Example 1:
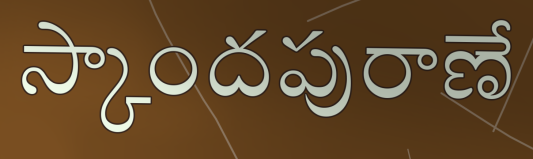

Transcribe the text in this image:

స్కాందపురాణే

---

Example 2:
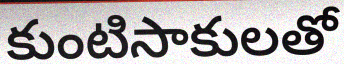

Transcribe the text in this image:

కుంటిసాకులతో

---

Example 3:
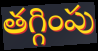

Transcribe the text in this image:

తగ్గింపు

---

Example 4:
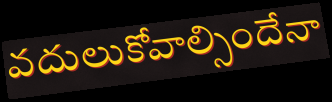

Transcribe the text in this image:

వదులుకోవాల్సిందేనా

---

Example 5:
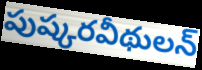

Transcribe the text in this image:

పుష్కరవీథులన్